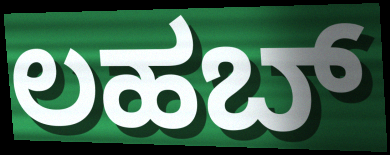
ಲಹಬ್